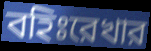
বহিঃরেখার